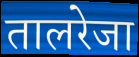
तालरेजा